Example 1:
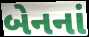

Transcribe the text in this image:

બેનનાં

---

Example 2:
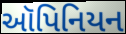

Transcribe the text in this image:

ઑપિનિયન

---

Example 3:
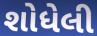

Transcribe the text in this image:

શોધેલી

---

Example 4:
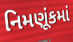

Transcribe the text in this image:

નિમણૂંકમાં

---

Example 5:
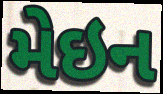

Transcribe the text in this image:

મેઇન